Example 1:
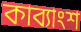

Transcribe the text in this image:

কাব্যাংশ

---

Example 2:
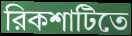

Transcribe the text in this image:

রিকশাটিতে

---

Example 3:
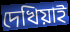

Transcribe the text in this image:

দেখিয়াই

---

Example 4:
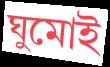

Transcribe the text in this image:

ঘুমোই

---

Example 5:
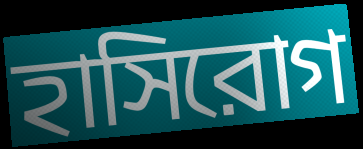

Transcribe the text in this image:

হাসিরোগ